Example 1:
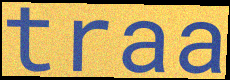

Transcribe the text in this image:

traa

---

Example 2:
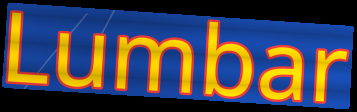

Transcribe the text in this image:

Lumbar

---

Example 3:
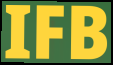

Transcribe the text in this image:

IFB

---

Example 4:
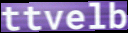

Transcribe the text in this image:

ttvelb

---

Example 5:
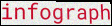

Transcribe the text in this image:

infograph